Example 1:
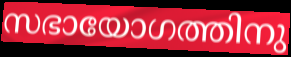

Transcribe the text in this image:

സഭായോഗത്തിനു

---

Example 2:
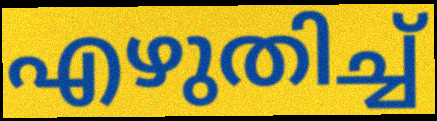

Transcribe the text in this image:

എഴുതിച്ച്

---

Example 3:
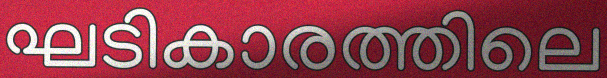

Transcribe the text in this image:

ഘടികാരത്തിലെ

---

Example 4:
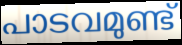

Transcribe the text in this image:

പാടവമുണ്ട്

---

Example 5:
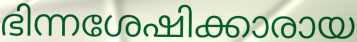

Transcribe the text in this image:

ഭിന്നശേഷിക്കാരായ